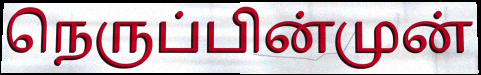
நெருப்பின்முன்